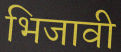
भिजावी